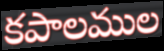
కపాలముల